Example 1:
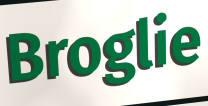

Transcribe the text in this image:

Broglie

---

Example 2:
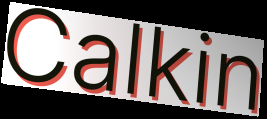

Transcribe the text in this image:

Calkin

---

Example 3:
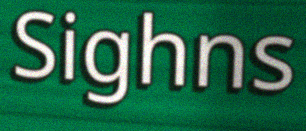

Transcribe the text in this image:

Sighns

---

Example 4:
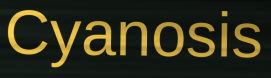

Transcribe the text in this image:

Cyanosis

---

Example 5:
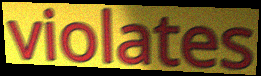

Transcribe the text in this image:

violates